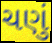
ચણું